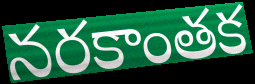
నరకాంతక